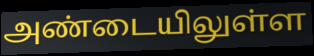
அண்டையிலுள்ள